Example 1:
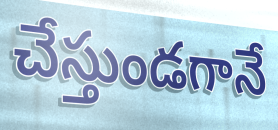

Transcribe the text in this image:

చేస్తుండగానే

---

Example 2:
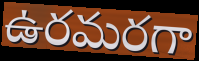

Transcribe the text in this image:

ఉరమరగా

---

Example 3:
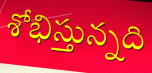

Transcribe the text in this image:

శోభిస్తున్నది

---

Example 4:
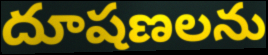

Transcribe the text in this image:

దూషణలను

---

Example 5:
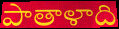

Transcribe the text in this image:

పాతాళాది